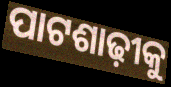
ପାଟଶାଢ଼ୀକୁ